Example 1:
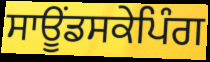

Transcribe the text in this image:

ਸਾਊਂਡਸਕੇਪਿੰਗ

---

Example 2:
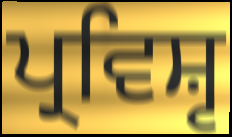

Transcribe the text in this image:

ਪ੍ਰਵਿਸ਼੍ਟ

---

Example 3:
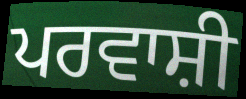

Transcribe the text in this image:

ਪਰਵਾਸ਼ੀ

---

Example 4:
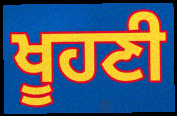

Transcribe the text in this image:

ਖੂਹਣੀ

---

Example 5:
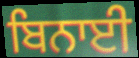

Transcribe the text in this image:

ਬਿਨਾਈ